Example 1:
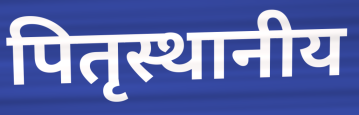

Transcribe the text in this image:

पितृस्थानीय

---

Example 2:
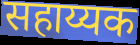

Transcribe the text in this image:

सहाय्यक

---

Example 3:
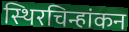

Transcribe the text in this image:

स्थिरचिन्हांकन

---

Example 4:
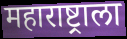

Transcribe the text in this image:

महाराष्ट्राला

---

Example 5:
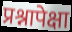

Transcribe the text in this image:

प्रश्नापेक्षा